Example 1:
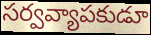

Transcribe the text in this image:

సర్వవ్యాపకుడూ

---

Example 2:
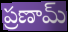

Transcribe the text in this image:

ప్రణామ్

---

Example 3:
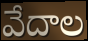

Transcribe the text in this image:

వేదాల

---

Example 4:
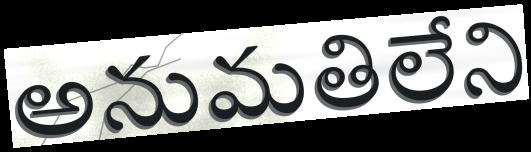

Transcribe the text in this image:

అనుమతిలేని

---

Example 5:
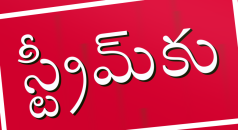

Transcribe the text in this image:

స్ట్రీమ్‌కు